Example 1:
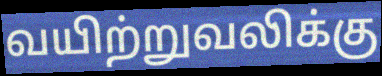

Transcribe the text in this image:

வயிற்றுவலிக்கு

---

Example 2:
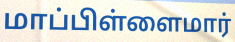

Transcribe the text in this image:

மாப்பிள்ளைமார்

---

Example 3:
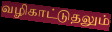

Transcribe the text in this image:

வழிகாட்டுதலும்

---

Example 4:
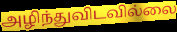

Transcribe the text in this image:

அழிந்துவிடவில்லை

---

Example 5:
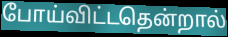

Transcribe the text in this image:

போய்விட்டதென்றால்